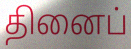
தினைப்